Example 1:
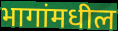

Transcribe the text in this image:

भागांमधील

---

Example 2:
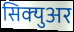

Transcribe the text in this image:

सिक्युअर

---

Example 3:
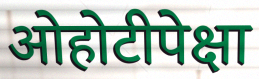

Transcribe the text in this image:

ओहोटीपेक्षा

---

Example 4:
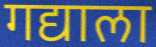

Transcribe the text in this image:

गद्याला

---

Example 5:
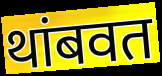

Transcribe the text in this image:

थांबवत